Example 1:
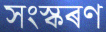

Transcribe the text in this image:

সংস্কৰণ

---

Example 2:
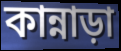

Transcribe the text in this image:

কান্নাড়া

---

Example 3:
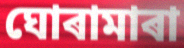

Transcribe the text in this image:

ঘোৰামাৰা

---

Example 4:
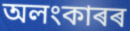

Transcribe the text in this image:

অলংকাৰৰ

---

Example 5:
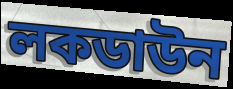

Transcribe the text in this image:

লকডাউন